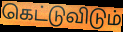
கெட்டுவிடும்